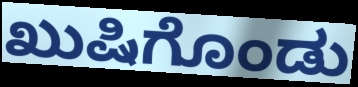
ಖುಷಿಗೊಂಡು